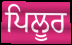
ਪਿਲੂਰ